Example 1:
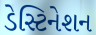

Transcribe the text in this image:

ડેસ્ટિનેશન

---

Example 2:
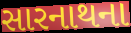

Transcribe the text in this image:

સારનાથના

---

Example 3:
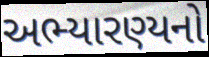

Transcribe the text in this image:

અભ્યારણ્યનો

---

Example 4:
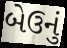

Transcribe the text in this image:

બેઉનું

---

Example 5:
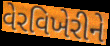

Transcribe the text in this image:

વેરવિખેરીને